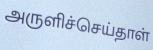
அருளிச்செய்தாள்